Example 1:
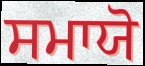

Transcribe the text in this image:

ਸਮਾਯੋ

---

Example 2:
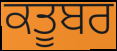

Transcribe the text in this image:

ਕਤੂਬਰ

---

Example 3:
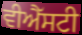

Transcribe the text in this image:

ਵੀਐੱਸਟੀ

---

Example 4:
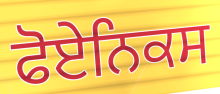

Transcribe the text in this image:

ਫੋਏਨਿਕਸ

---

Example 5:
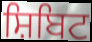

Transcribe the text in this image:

ਸ਼ਿਬਿਟ